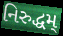
નિરુદ્ધમ્